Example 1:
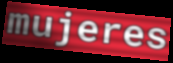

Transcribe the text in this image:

mujeres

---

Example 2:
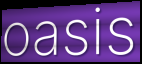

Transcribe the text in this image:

oasis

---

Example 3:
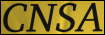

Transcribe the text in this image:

CNSA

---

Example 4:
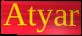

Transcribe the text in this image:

Atyar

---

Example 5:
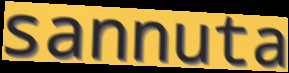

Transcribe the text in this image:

sannuta